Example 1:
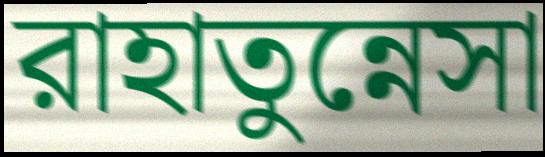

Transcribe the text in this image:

রাহাতুন্নেসা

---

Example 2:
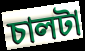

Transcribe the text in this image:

চালটা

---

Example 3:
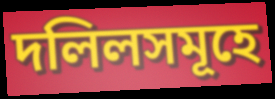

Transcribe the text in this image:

দলিলসমূহে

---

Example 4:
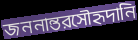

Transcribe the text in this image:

জননান্তরসৌহৃদানি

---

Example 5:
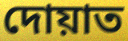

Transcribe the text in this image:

দোয়াত